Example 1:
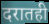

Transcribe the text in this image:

दरातही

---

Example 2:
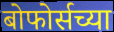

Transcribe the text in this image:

बोफोर्सच्या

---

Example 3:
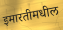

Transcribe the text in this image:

इमारतीमधील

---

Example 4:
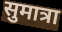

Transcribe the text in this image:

सुमात्रा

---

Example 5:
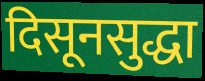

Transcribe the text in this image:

दिसूनसुद्धा